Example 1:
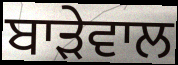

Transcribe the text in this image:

ਬਾੜੇਵਾਲ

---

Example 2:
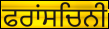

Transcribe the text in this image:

ਫਰਾਂਸਚਿਨੀ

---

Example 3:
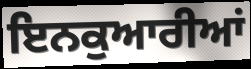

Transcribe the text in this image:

ਇਨਕੁਆਰੀਆਂ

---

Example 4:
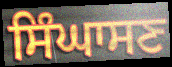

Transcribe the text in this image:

ਸਿੰਘਾਸਣ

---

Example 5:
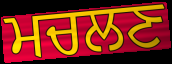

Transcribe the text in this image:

ਮਚਲਣ